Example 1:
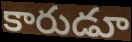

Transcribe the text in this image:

కారుడూ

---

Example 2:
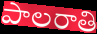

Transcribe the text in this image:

పాలరాతి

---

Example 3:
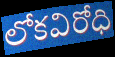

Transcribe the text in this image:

లోకవిరోధి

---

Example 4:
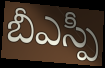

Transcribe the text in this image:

బీఎస్పీ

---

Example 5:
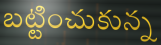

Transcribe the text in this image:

బట్టించుకున్న